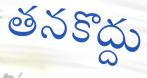
తనకొద్దు